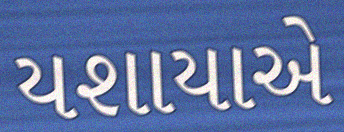
યશાયાએ